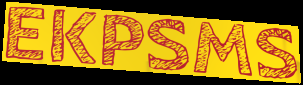
EKPSMS